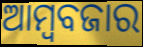
ଆମ୍ୱବଜାର